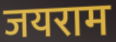
जयराम